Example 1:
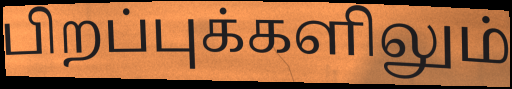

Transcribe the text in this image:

பிறப்புக்களிலும்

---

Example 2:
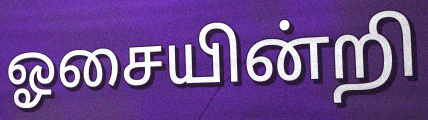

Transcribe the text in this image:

ஓசையின்றி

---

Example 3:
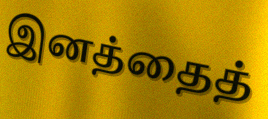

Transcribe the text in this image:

இனத்தைத்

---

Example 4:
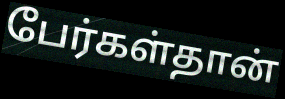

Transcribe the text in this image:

பேர்கள்தான்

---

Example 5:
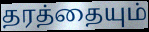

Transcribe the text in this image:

தரத்தையும்